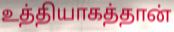
உத்தியாகத்தான்